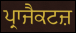
ਪ੍ਰਾਜੈਕਟਜ਼